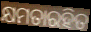
କ୍ଷମତାରହିତ